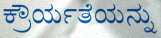
ಕ್ರೌರ್ಯತೆಯನ್ನು